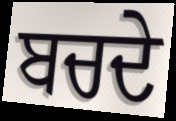
ਬਚਦੇ